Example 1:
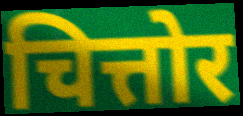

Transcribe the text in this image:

चित्तोर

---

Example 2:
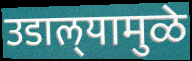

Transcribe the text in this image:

उडाल्यामुळे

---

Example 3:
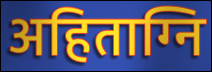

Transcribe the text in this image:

अहिताग्नि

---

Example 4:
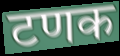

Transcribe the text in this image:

टणक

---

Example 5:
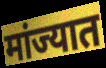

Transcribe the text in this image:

मांज्यात